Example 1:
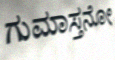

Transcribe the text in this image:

ಗುಮಾಸ್ತನೋ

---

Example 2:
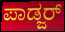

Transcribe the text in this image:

ಪಾಡ್ಜರ್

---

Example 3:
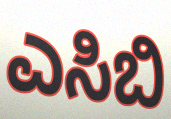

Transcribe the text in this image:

ಎಸಿಬಿ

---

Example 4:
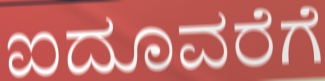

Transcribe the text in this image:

ಐದೂವರೆಗೆ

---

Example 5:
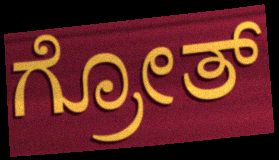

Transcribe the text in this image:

ಗ್ರೋತ್